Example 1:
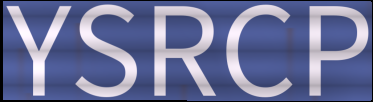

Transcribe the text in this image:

YSRCP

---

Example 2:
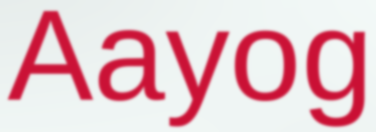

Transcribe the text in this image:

Aayog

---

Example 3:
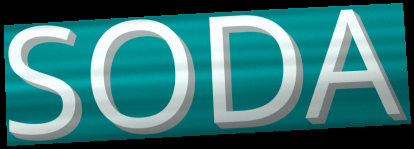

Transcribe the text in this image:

SODA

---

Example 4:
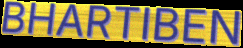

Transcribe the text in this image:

BHARTIBEN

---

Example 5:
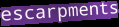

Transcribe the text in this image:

escarpments